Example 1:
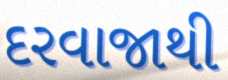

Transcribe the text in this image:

દરવાજાથી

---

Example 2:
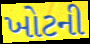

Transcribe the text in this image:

ખોટની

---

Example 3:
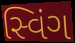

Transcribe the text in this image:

સ્વિંગ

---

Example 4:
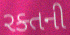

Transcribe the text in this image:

રક્તની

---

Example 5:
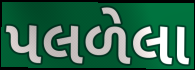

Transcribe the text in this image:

પલળેલા